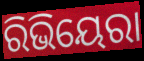
ରିଭିୟେରା